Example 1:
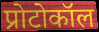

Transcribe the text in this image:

प्रोटोकॉल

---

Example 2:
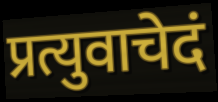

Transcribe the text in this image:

प्रत्युवाचेदं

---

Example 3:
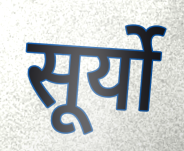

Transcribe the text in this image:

सूर्यो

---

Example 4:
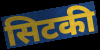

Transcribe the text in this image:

सिटकी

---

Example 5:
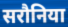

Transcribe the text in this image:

सरौनिया